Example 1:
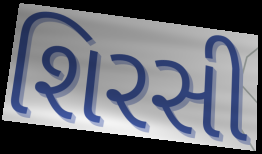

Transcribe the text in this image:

શિરસી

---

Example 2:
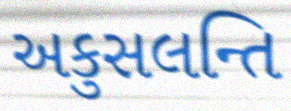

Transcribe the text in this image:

અકુસલન્તિ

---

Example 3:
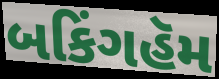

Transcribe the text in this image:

બકિંગહૅમ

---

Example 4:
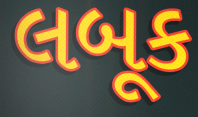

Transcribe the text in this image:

લબૂક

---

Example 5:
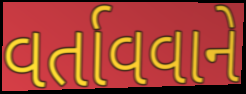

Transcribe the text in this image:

વર્તાવવાને